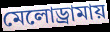
মেলোড্রামায়